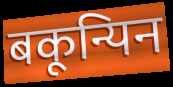
बकून्यिन